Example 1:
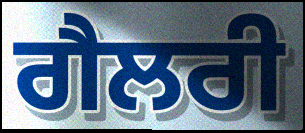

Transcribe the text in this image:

ਗੈਲਰੀ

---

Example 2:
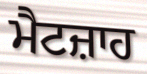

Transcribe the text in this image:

ਮੈਟਜ਼ਾਹ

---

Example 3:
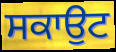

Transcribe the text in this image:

ਸਕਾਉਟ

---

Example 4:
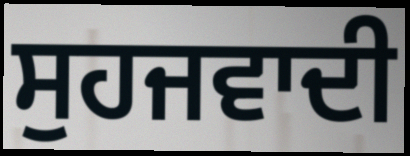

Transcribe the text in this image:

ਸੁਹਜਵਾਦੀ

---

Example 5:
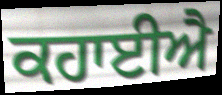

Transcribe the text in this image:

ਕਹਾਈਐ